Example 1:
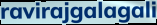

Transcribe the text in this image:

ravirajgalagali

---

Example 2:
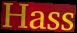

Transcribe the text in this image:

Hass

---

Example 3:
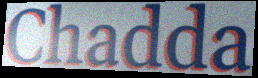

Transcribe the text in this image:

Chadda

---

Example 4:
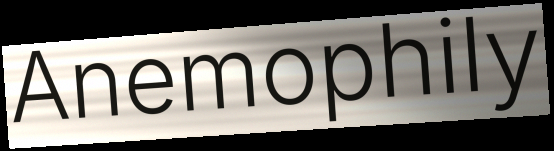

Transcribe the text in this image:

Anemophily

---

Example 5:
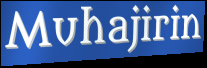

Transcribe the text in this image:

Muhajirin